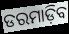
ଡରମାଡ଼ିବ